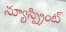
న్యూస్ప్రింట్